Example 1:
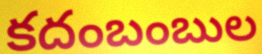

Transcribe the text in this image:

కదంబంబుల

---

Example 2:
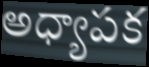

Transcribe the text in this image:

అధ్యాపక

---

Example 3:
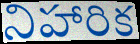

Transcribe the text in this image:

నిహారిక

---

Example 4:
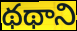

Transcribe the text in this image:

థథాని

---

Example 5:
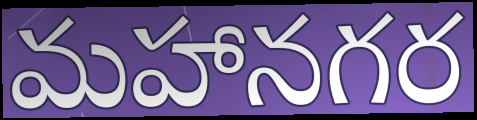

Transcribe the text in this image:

మహానగర